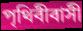
পৃথিবীবাসী